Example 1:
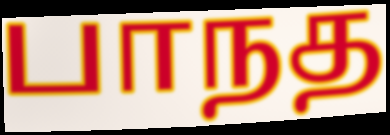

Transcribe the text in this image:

பாநத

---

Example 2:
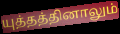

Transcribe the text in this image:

யுத்தத்தினாலும்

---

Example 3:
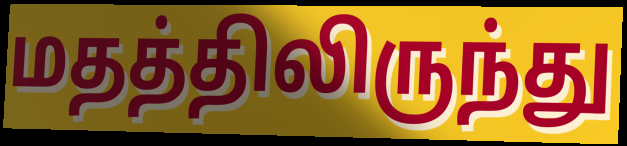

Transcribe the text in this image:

மதத்திலிருந்து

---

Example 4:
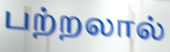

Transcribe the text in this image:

பற்றலால்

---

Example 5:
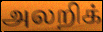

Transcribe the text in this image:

அலறிக்